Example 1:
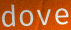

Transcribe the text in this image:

dove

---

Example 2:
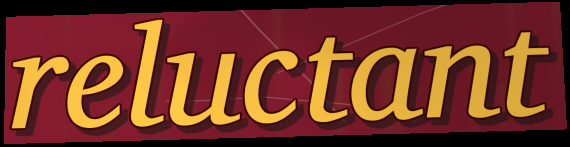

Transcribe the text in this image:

reluctant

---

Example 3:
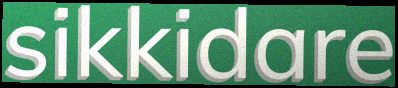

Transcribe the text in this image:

sikkidare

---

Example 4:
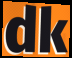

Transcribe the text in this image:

dk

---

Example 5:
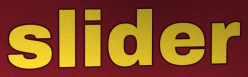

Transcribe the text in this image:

slider